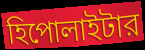
হিপোলাইটার